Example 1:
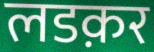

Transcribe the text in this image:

लडक़र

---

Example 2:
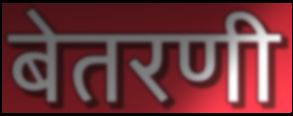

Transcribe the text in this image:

बेतरणी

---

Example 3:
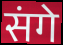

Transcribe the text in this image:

संगे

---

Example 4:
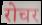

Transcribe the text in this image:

रोचर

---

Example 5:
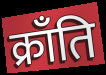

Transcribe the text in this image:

क्राँति